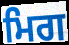
ਮਿਗ